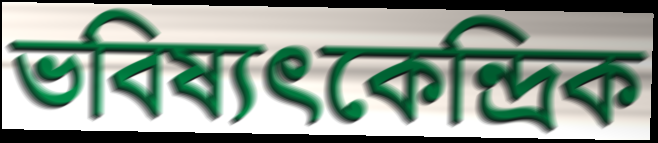
ভবিষ্যৎকেন্দ্রিক